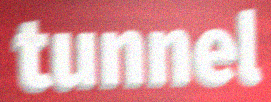
tunnel